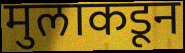
मुलाकडून